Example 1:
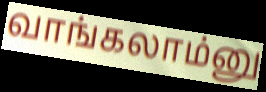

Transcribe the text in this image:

வாங்கலாம்னு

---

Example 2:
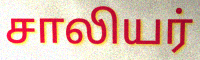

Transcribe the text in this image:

சாலியர்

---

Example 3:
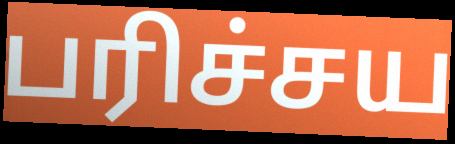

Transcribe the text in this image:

பரிச்சய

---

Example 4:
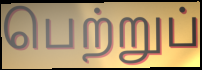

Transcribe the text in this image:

பெற்றுப்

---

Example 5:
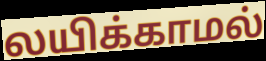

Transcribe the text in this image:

லயிக்காமல்